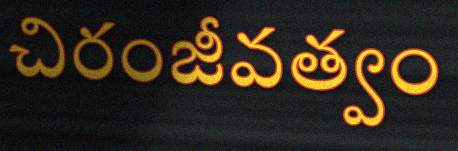
చిరంజీవత్వం